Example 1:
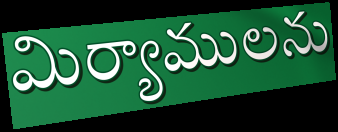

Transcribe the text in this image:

మిర్యాములను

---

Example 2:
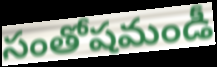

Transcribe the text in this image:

సంతోషమండీ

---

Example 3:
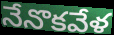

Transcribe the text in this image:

నేనొకవేళ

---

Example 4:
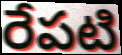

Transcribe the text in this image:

రేపటి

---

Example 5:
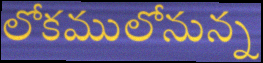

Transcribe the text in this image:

లోకములోనున్న